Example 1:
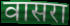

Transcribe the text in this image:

वासरा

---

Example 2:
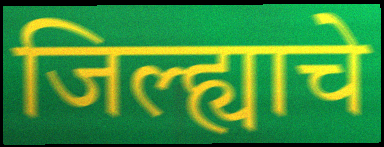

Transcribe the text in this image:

जिल्ह्याचे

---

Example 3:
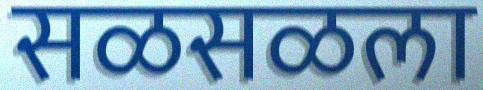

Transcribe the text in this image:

सळसळला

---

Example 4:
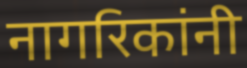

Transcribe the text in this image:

नागरिकांनी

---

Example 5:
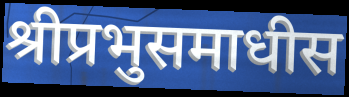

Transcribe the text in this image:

श्रीप्रभुसमाधीस